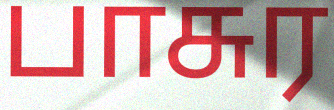
பாசுர